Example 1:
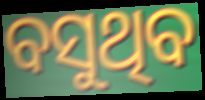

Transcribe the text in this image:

ବସୁଥିବ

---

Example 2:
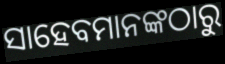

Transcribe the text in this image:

ସାହେବମାନଙ୍କଠାରୁ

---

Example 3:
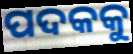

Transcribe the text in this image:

ପଦକକୁ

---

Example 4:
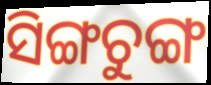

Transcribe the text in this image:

ସିଙ୍ଗଚୁଙ୍ଗ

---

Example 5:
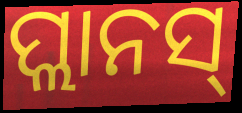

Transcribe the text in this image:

ପ୍ଲାନସ୍